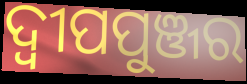
ଦ୍ଵୀପପୁଞ୍ଜର